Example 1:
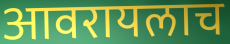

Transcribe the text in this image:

आवरायलाच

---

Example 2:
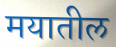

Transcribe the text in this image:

मयातील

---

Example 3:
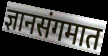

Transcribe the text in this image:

ज्ञानसंगमात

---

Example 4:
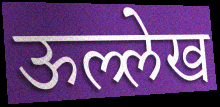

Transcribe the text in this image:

ऊल्लेख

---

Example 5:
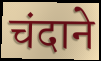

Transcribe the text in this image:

चंदाने